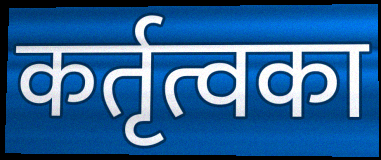
कर्तृत्वका